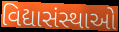
વિદ્યાસંસ્થાઓ